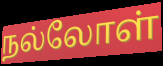
நல்லோள்